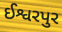
ઈશ્વરપુર